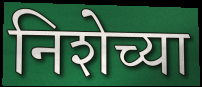
निशेच्या